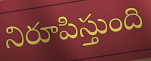
నిరూపిస్తుంది